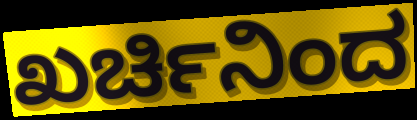
ಖರ್ಚಿನಿಂದ